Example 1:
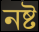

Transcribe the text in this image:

নষ্ট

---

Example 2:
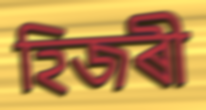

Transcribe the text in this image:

হিজৰী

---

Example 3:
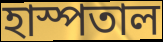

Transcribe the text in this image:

হাস্পতাল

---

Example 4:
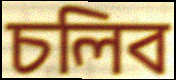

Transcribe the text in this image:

চলিব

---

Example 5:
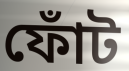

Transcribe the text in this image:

ফোঁট